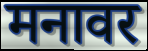
मनावर